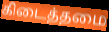
கிடைத்தமை